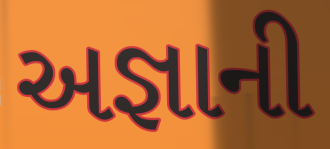
અજ્ઞાની